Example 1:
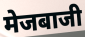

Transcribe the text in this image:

मेजबाजी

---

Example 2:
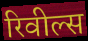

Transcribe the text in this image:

रिवील्स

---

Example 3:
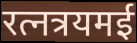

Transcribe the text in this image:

रत्नत्रयमई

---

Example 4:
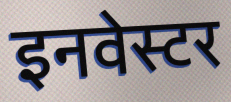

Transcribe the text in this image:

इनवेस्टर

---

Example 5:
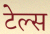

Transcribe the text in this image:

टेल्स